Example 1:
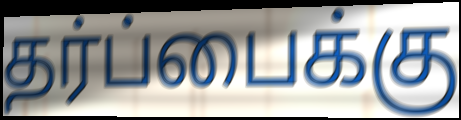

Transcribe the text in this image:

தர்ப்பைக்கு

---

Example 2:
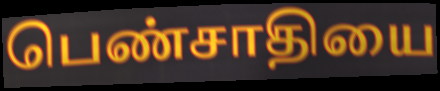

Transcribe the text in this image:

பெண்சாதியை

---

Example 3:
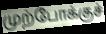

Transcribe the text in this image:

முற்போக்குச்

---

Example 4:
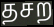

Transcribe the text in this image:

தசற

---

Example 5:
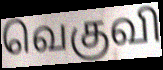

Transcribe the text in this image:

வெகுவி